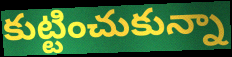
కుట్టించుకున్నా